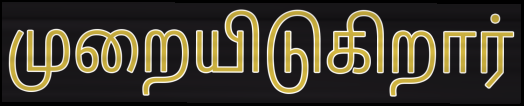
முறையிடுகிறார்